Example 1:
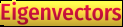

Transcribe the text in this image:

Eigenvectors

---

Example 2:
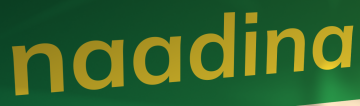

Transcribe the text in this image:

naadina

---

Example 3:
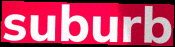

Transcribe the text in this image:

suburb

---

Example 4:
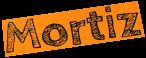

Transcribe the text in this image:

Mortiz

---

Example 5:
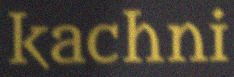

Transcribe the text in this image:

kachni